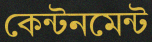
কেন্টনমেন্ট